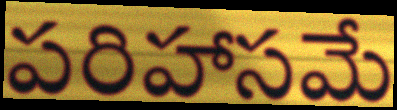
పరిహాసమే